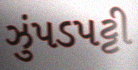
ઝુંપડપટ્ટી